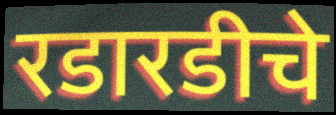
रडारडीचे